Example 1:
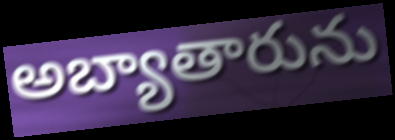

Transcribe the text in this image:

అబ్యాతారును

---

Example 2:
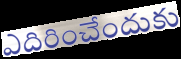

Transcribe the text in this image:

ఎదిరించేందుకు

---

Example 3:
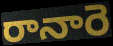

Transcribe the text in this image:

రానారె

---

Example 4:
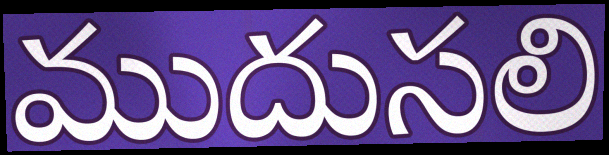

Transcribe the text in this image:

ముదుసలి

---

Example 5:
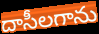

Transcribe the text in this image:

దాసీలగాను